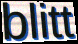
blitt